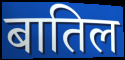
बातिल